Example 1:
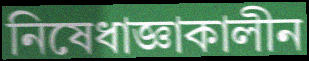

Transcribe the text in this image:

নিষেধাজ্ঞাকালীন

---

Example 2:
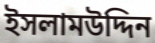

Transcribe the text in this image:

ইসলামউদ্দিন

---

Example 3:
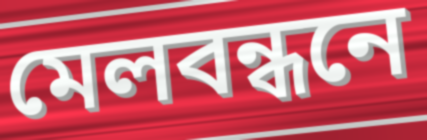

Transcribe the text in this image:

মেলবন্ধনে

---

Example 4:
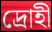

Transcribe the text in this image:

দ্রোহী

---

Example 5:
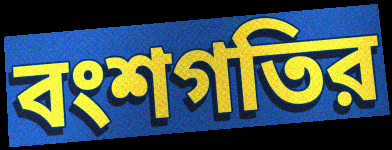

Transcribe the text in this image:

বংশগতির